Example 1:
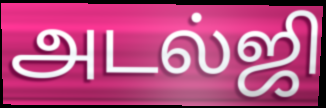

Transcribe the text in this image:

அடல்ஜி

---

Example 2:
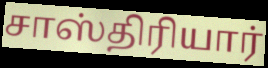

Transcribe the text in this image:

சாஸ்திரியார்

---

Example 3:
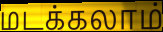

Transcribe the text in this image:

மடக்கலாம்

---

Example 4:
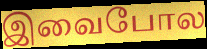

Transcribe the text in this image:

இவைபோல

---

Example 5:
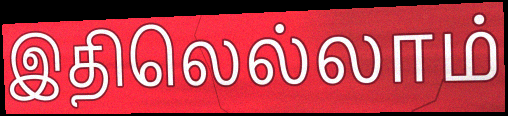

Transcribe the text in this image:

இதிலெல்லாம்